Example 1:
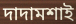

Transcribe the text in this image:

দাদামশাই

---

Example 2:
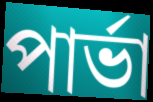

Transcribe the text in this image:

পার্ভা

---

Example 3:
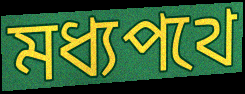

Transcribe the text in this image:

মধ্যপথে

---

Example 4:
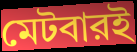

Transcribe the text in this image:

মেটবারই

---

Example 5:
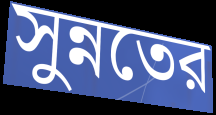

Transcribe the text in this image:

সুন্নতের